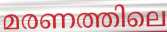
മരണത്തിലെ